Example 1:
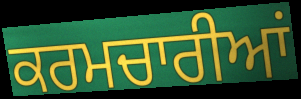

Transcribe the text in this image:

ਕਰਮਚਾਰੀਆਂ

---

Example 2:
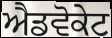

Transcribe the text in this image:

ਐਡਵੋਕੇਟ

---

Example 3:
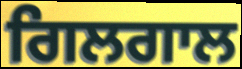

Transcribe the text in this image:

ਗਿਲਗਾਲ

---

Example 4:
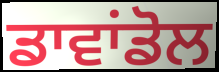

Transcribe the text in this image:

ਡਾਵਾਂਡੋਲ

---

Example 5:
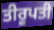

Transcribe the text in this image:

ਤੀਰੂਪਤੀ